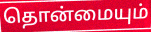
தொன்மையும்